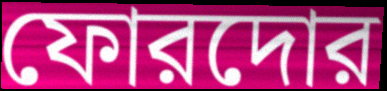
ফোরদোর